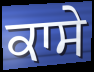
ਕਾਸੇ